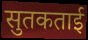
सुतकताई